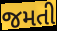
જમતી